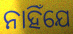
ନାହିଁଯେ